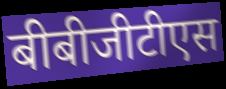
बीबीजीटीएस